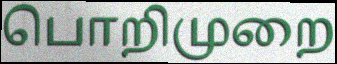
பொறிமுறை